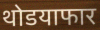
थोडयाफार